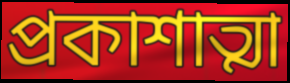
প্রকাশাত্মা